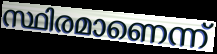
സ്ഥിരമാണെന്ന്